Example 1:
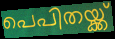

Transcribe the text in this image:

പെപിതയ്ക്ക്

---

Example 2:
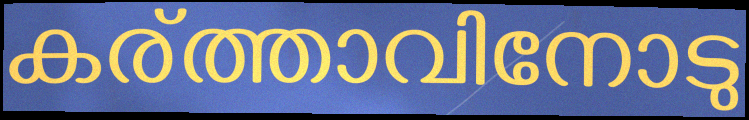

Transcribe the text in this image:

കര്ത്താവിനോടു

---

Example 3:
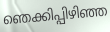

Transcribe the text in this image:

ഞെക്കിപ്പിഴിഞ്ഞ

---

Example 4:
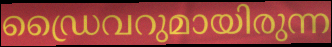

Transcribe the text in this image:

ഡ്രൈവറുമായിരുന്ന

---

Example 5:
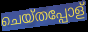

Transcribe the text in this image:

ചെയ്തപ്പോള്